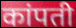
कांपती